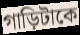
গাড়িটাকে